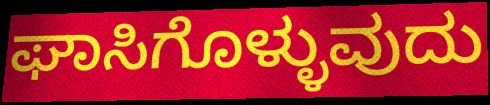
ಘಾಸಿಗೊಳ್ಳುವುದು